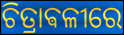
ଚିତ୍ରାଵଳୀରେ